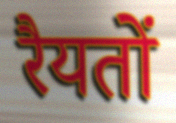
रैयतों